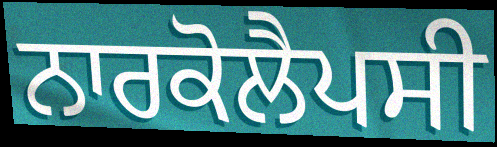
ਨਾਰਕੋਲੈਪਸੀ